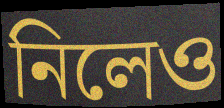
নিলেও